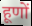
हूणों